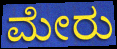
ಮೇರು